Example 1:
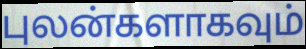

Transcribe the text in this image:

புலன்களாகவும்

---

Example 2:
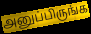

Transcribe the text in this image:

அனுப்பிருங்க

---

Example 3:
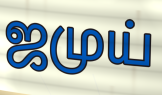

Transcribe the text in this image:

ஜமுய்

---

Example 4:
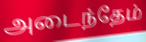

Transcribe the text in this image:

அடைந்தேம்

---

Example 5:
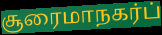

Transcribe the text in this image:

சூரைமாநகர்ப்